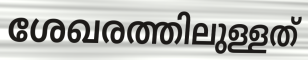
ശേഖരത്തിലുള്ളത്